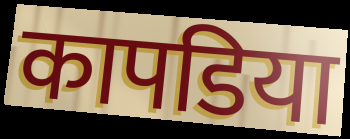
कापडिया